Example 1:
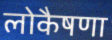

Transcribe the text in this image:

लोकैषणा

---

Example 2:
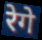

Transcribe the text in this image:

रेगे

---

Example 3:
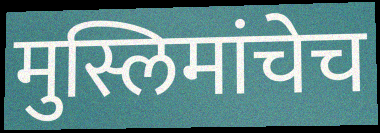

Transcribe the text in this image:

मुस्लिमांचेच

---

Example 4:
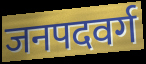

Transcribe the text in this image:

जनपदवर्ग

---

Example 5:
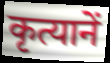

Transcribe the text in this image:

कृत्यानें